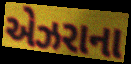
એઝરાના